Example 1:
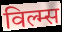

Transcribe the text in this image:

विल्म्स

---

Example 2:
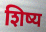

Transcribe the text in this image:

शिष्य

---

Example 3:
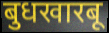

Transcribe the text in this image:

बुधखारबू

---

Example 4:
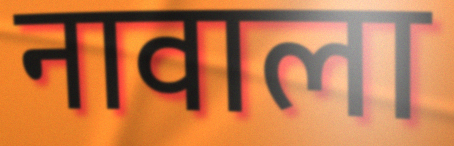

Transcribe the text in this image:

नावाला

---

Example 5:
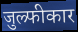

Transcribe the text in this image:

जुल्फीकार